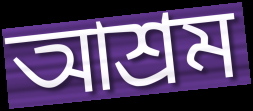
আশ্ৰম